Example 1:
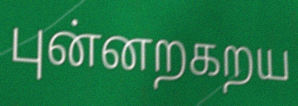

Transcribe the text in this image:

புன்னறகறய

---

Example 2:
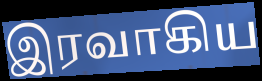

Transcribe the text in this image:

இரவாகிய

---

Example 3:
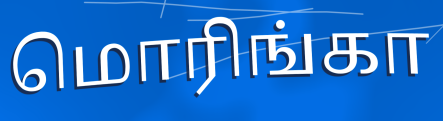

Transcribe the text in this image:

மொரிங்கா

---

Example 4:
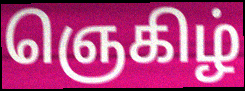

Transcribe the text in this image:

ஞெகிழ்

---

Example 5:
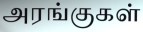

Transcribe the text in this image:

அரங்குகள்